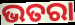
ଭତରା